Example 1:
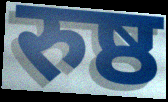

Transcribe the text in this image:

रुष्ठ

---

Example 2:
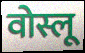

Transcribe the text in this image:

वोस्लू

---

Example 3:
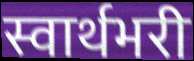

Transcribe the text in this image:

स्वार्थभरी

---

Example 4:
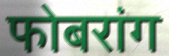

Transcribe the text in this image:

फोबरांग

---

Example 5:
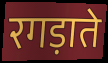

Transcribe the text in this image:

रगड़ाते